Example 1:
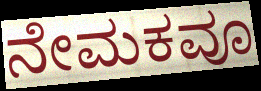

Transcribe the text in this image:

ನೇಮಕವೂ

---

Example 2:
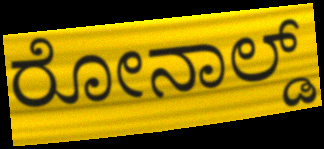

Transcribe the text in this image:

ರೋನಾಲ್ಡ್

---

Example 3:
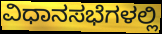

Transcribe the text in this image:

ವಿಧಾನಸಭೆಗಳಲ್ಲಿ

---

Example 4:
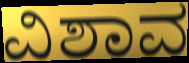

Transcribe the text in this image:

ವಿಶಾವ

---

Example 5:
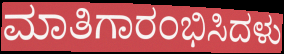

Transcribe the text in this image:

ಮಾತಿಗಾರಂಭಿಸಿದಳು